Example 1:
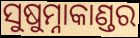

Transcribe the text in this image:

ସୁଷୁମ୍ନାକାଣ୍ଡର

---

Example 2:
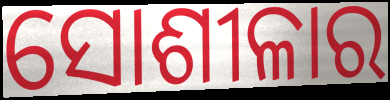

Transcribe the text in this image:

ସୋଶୀଳାର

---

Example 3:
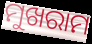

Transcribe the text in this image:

ମୁଖରାମ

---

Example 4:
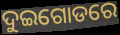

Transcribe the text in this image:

ଦୁଇଗୋଡରେ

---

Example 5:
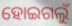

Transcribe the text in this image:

ହୋଇଗଲୁଁ